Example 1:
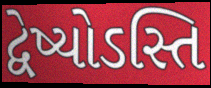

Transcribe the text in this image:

દ્વેષ્યોઽસ્તિ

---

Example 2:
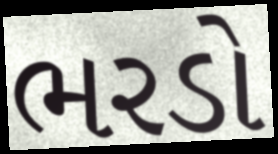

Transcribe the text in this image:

ભરડો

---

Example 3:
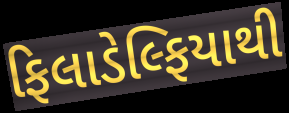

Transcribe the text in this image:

ફિલાડેલ્ફિયાથી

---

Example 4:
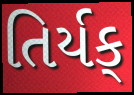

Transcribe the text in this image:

તિર્યક્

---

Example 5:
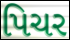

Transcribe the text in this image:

પિચર